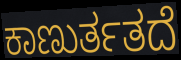
ಕಾಣುರ್ತತದೆ